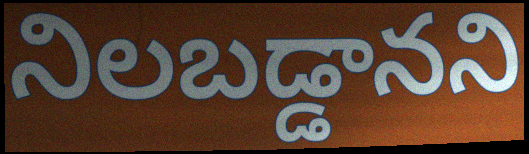
నిలబడ్డానని